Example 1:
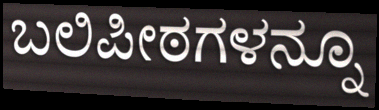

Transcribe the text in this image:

ಬಲಿಪೀಠಗಳನ್ನೂ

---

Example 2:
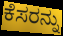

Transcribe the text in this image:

ಕೆಸರನ್ನು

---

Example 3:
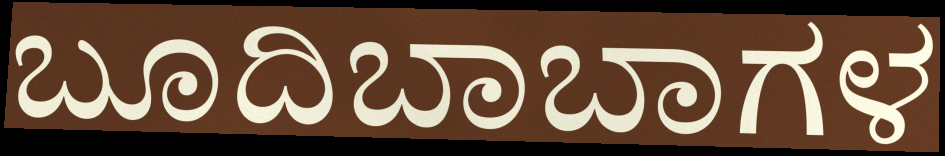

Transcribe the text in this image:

ಬೂದಿಬಾಬಾಗಳ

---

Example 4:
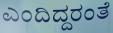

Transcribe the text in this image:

ಎಂದಿದ್ದರಂತೆ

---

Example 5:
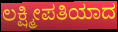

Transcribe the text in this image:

ಲಕ್ಷ್ಮೀಪತಿಯಾದ